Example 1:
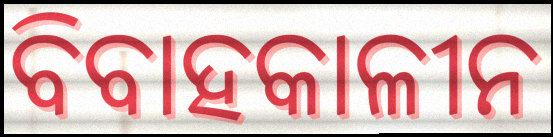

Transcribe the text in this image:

ବିବାହକାଳୀନ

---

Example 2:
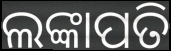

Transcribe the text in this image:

ଲଙ୍କାପତି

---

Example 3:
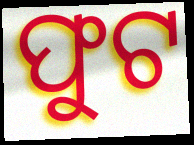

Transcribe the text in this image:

ଫୁଟ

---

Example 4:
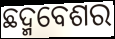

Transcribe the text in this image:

ଛଦ୍ମବେଶର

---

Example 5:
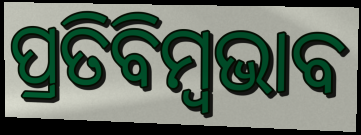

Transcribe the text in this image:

ପ୍ରତିବିମ୍ବଭାବ